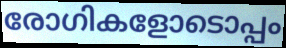
രോഗികളോടൊപ്പം